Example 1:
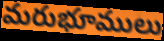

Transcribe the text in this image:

మరుభూములు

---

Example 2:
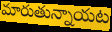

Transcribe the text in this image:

మారుతున్నాయట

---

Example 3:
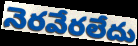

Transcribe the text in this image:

నెరవేరలేదు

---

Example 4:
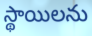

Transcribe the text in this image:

స్థాయిలను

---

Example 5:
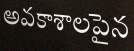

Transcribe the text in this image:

అవకాశాలపైన